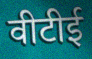
वीटीई